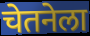
चेतनेला